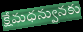
క్షేమధన్వునకు